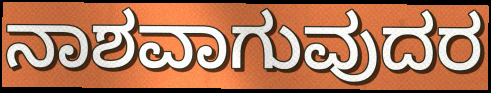
ನಾಶವಾಗುವುದರ